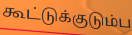
கூட்டுக்குடும்ப